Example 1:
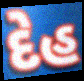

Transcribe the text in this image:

દેહ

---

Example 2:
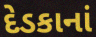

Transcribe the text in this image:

દેડકાનાં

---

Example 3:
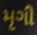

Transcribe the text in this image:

મૃગી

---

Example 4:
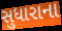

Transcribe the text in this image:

સુધારાના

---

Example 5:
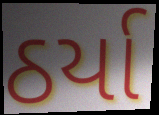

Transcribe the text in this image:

ઠર્યા